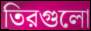
তিরগুলো